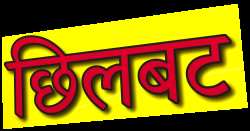
छिलबट